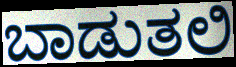
ಬಾಡುತಲಿ